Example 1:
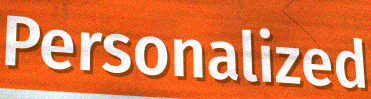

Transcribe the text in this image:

Personalized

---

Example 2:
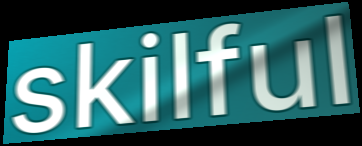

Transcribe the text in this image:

skilful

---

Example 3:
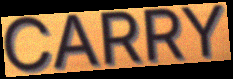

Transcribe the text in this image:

CARRY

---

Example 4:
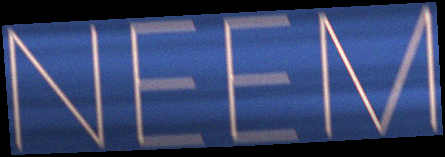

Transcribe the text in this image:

NEEM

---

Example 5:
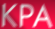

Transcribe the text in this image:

KPA